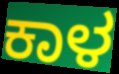
ಕಾಳ